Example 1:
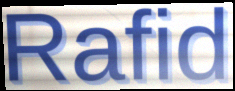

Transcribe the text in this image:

Rafid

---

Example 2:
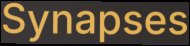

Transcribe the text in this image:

Synapses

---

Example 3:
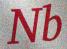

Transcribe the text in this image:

Nb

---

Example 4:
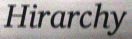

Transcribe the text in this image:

Hirarchy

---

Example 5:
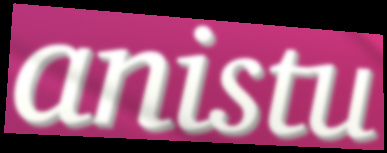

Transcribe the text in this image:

anistu